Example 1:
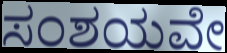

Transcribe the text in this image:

ಸಂಶಯವೇ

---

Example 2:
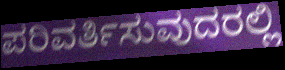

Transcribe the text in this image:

ಪರಿವರ್ತಿಸುವುದರಲ್ಲಿ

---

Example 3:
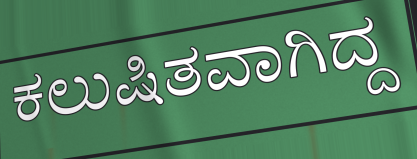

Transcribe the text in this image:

ಕಲುಷಿತವಾಗಿದ್ದ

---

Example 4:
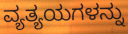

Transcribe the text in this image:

ವ್ಯತ್ಯಯಗಳನ್ನು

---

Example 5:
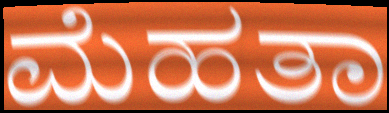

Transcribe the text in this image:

ಮೆಹತಾ